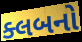
ક્લબનો